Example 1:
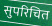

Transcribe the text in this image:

सुपरिचित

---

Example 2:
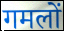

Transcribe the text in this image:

गमलों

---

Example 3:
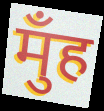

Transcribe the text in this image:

मुँह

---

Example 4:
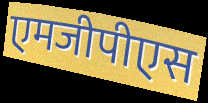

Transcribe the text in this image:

एमजीपीएस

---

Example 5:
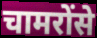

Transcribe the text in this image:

चामरोंसे